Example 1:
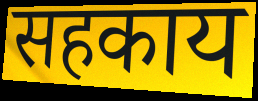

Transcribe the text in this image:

सहकाय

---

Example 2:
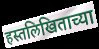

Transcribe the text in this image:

हस्तलिखिताच्या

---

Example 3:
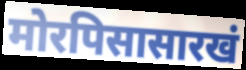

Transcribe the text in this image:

मोरपिसासारखं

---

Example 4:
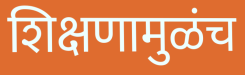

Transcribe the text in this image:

शिक्षणामुळंच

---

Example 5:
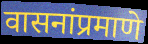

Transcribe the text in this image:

वासनांप्रमाणे